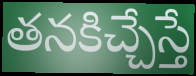
తనకిచ్చేస్తే